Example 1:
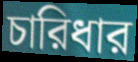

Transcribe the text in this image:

চারিধার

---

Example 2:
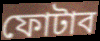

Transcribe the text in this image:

ফোটাব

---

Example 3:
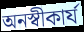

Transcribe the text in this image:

অনস্বীকার্য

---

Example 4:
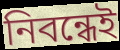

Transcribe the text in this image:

নিবন্ধেই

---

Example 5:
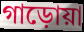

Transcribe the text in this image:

গাড়োয়া